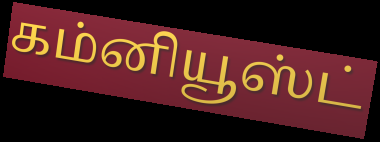
கம்னியூஸ்ட்